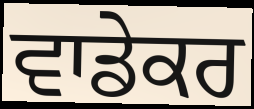
ਵਾਡੇਕਰ